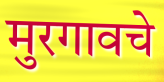
मुरगावचे